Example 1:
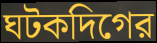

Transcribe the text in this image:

ঘটকদিগের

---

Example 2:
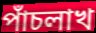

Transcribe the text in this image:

পাঁচলাখ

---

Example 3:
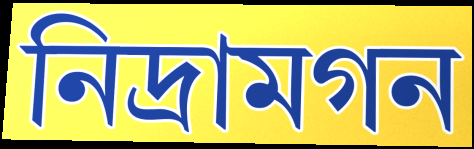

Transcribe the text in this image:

নিদ্রামগন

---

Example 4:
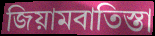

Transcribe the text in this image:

জিয়ামবাতিস্তা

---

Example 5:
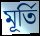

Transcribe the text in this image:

মূর্তি